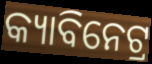
କ୍ୟାବିନେଟ୍ର